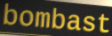
bombast